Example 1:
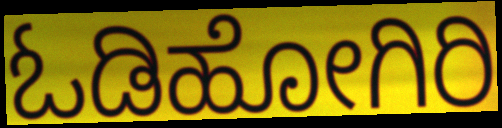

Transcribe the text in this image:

ಓಡಿಹೋಗಿರಿ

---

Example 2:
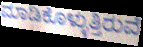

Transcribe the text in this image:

ಮಾಡಿಕೊಳ್ಳುತ್ತಿರುವೆ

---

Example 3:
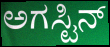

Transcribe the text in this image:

ಅಗಸ್ಟಿನ್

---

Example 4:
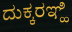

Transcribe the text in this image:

ದುಕ್ಕರಞ್ಹಿ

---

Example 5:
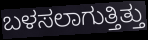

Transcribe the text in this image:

ಬಳಸಲಾಗುತ್ತಿತ್ತು